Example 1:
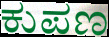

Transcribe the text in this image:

ಕುಪಣ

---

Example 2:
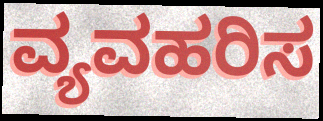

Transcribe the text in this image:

ವ್ಯವಹರಿಸ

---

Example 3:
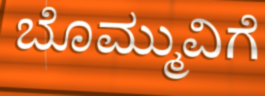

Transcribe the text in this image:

ಬೊಮ್ಮುವಿಗೆ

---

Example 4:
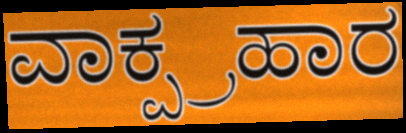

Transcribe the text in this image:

ವಾಕ್ಪ್ರಹಾರ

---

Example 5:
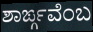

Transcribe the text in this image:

ಶಾರ್ಙ್ಗವೆಂಬ